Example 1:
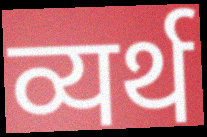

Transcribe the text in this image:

व्यर्थ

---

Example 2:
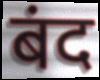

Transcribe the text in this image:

बंद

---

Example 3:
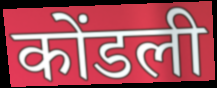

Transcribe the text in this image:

कोंडली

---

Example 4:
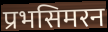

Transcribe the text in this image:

प्रभसिमरन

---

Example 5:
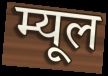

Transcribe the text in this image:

म्यूल